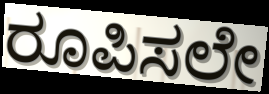
ರೂಪಿಸಲೇ